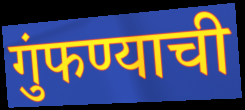
गुंफण्याची